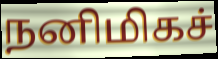
நனிமிகச்